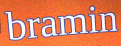
bramin